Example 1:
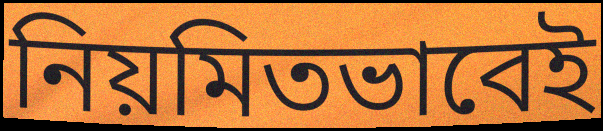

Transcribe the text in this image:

নিয়মিতভাবেই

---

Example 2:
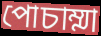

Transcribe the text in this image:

পোচাম্মা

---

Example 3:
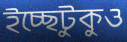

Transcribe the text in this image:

ইচ্ছেটুকুও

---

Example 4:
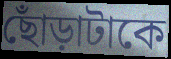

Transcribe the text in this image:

ছোঁড়াটাকে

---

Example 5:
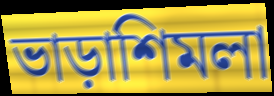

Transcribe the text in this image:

ভাড়াশিমলা